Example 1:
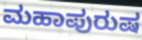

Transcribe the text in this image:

ಮಹಾಪುರುಷ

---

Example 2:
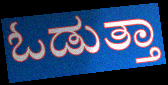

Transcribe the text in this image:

ಓಡುತ್ತಾ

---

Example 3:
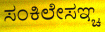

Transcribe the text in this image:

ಸಂಕಿಲೇಸಞ್ಚ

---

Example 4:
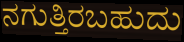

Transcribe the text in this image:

ನಗುತ್ತಿರಬಹುದು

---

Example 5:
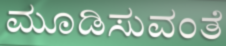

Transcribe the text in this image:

ಮೂಡಿಸುವಂತೆ